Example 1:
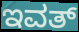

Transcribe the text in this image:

ಇವತ್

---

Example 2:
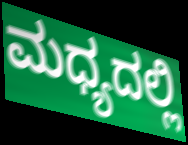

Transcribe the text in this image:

ಮಧ್ಯದಲ್ಲಿ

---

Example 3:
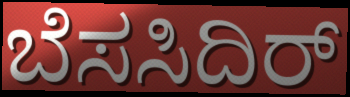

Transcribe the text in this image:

ಬೆಸಸಿದಿರ್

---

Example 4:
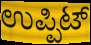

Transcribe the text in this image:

ಉಪ್ಪಿಟ್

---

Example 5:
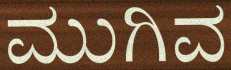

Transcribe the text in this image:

ಮುಗಿವ